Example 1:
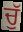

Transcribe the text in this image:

ਚੁੱ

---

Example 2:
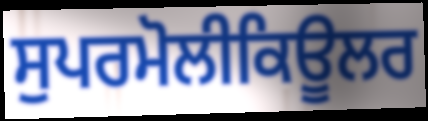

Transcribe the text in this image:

ਸੁਪਰਮੋਲੀਕਿਊਲਰ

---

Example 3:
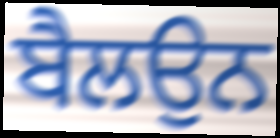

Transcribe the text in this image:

ਬੈਲਉਨ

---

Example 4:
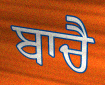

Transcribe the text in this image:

ਬਾਚੈ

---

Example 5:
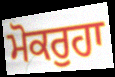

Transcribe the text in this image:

ਮੋਕਰੁਹਾ